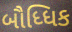
બૌધ્ધિક